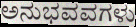
ಅನುಭವವಗಳು